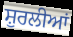
ਸ਼ੁਰਲੀਆਂ